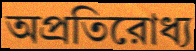
অপ্রতিরোধ্য